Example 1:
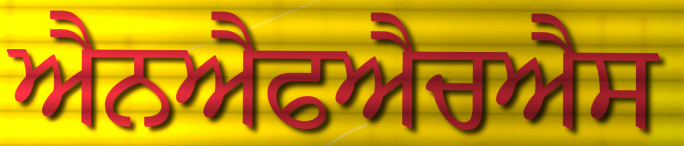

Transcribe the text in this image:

ਐਨਐਫਐਚਐਸ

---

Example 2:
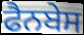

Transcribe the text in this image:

ਫੈਨਬੇਸ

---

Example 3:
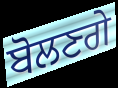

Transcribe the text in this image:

ਬੋਲਣਗੇ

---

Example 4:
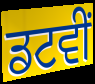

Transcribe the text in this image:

ਡਟਵੀਂ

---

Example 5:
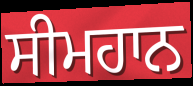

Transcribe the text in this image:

ਸੀਮਹਾਨ